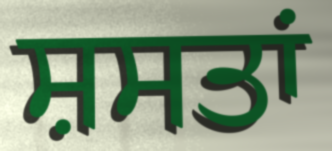
ਸ਼ਸਤਾਂ